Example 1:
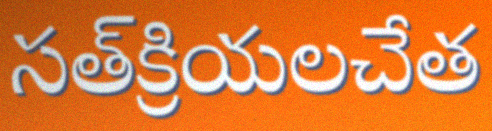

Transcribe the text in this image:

సత్‌క్రియలచేత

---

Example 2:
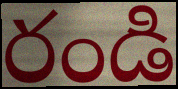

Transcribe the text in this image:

రండి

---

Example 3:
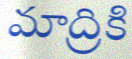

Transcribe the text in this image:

మాద్రికి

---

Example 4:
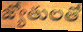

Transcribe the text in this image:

జ్యోతులతో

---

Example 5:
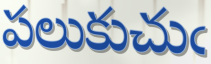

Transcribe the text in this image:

పలుకుచుఁ